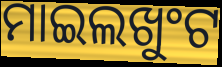
ମାଇଲଖୁଂଟ